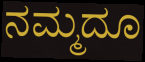
ನಮ್ಮದೂ